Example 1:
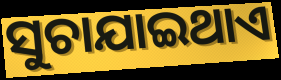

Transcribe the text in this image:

ସୁଚାଯାଇଥାଏ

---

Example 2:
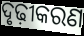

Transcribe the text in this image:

ଦୃଢ଼ୀକରଣ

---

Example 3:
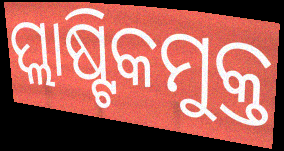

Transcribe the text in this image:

ପ୍ଲାଷ୍ଟିକମୁକ୍ତ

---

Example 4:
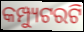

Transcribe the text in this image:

କମ୍ପ୍ୟୁଟରଟି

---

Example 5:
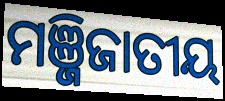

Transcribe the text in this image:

ମଞ୍ଜିଜାତୀୟ